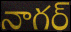
నాగర్